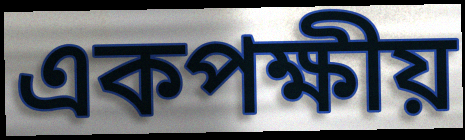
একপক্ষীয়